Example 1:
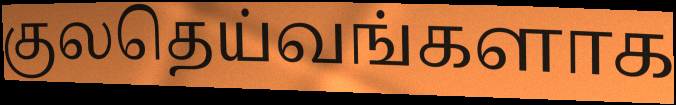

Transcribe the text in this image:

குலதெய்வங்களாக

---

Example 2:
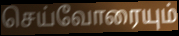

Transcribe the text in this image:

செய்வோரையும்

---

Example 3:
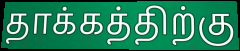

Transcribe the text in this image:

தாக்கத்திற்கு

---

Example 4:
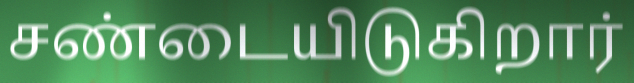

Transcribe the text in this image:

சண்டையிடுகிறார்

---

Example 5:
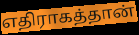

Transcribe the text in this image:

எதிராகத்தான்